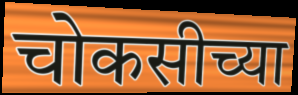
चोकसीच्या